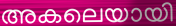
അകലെയായി